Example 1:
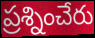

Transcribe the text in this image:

ప్రశ్నించేరు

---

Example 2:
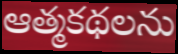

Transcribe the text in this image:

ఆత్మకథలను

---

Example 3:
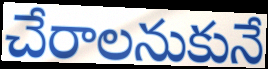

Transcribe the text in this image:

చేరాలనుకునే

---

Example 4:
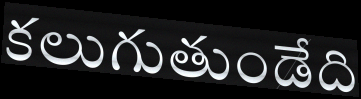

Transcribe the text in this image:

కలుగుతుండేది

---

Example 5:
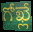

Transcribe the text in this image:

గోఖ్లే